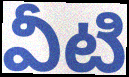
వీటి